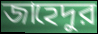
জাহেদুর